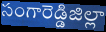
సంగారెడ్డిజిల్లా